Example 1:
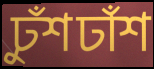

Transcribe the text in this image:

ঢুঁশঢাঁশ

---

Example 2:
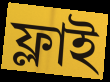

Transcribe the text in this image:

ফ্লাই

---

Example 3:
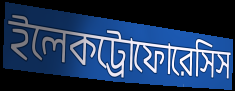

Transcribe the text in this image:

ইলেকট্রোফোরেসিস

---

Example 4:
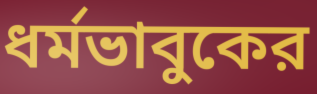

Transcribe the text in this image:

ধর্মভাবুকের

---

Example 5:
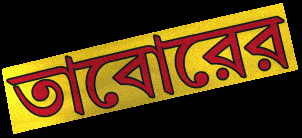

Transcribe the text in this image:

তাবোরের